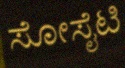
ಸೋಸೈಟಿ